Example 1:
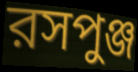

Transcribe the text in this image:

রসপুঞ্জ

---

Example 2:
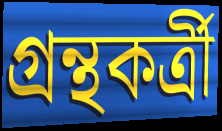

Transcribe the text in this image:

গ্রন্থকর্ত্রী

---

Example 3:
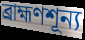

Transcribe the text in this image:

ব্রাহ্মণশূন্য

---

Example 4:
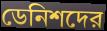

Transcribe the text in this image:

ডেনিশদের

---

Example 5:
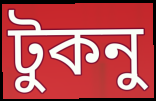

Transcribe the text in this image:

টুকনু